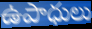
ఉపాధులు